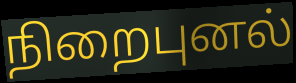
நிறைபுனல்